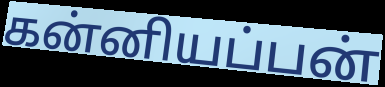
கன்னியப்பன்